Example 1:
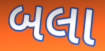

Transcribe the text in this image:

બલા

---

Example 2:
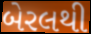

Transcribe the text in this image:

બેરલથી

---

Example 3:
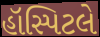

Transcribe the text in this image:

હૉસ્પિટલે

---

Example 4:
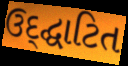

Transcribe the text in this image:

ઉદ્દ્ઘાટિત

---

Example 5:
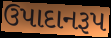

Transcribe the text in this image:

ઉપાદાનરૂપ